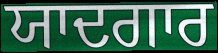
ਯਾਦਗਾਰ